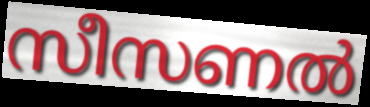
സീസണൽ